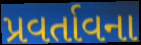
પ્રવર્તાવના